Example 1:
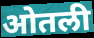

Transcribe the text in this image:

ओतली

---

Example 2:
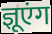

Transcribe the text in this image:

ज्ञूएंग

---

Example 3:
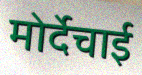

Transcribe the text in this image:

मोर्देचाई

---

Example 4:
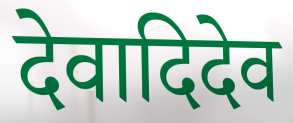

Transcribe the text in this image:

देवादिदेव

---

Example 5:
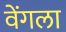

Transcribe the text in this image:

वेंगला